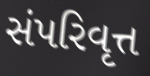
સંપરિવૃત્ત